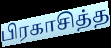
பிரகாசித்த